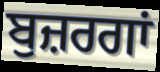
ਬੁਜ਼ਰਗਾਂ